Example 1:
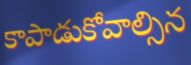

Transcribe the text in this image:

కాపాడుకోవాల్సిన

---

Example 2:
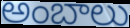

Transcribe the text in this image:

అంబాలు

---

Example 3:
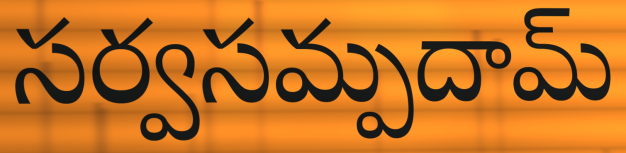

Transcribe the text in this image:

సర్వసమ్పదామ్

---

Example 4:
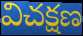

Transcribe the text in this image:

విచక్షణ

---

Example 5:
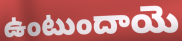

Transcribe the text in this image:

ఉంటుందాయె